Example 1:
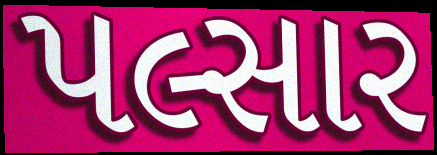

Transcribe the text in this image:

પલ્સાર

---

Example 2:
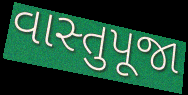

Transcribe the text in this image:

વાસ્તુપૂજા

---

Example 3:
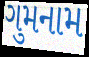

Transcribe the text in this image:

ગુમનામ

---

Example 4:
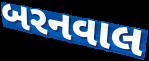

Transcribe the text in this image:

બરનવાલ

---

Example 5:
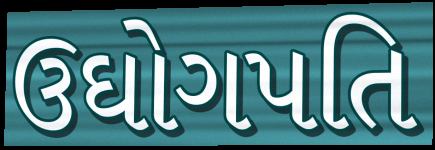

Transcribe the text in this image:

ઉઘોગપતિ